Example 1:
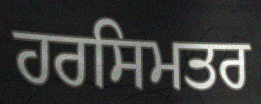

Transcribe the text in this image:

ਹਰਸਿਮਤਰ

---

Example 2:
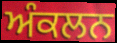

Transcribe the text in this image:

ਅੰਕਲਨ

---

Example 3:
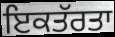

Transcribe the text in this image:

ਇਕਤੱਰਤਾ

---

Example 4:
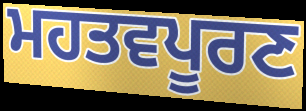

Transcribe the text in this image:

ਮਹਤਵਪੂਰਣ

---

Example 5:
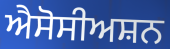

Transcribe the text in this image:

ਐਸੋਸੀਅਸ਼ਨ